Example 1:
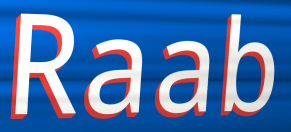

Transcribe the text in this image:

Raab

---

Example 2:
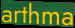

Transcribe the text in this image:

arthma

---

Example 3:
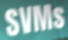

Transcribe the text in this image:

SVMs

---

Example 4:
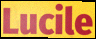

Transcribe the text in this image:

Lucile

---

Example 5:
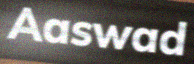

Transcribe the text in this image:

Aaswad